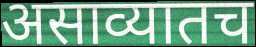
असाव्यातच